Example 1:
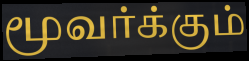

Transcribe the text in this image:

மூவர்க்கும்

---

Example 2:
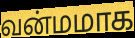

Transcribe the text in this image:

வன்மமாக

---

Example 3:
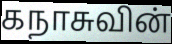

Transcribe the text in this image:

கநாசுவின்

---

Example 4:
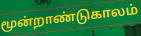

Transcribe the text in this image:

மூன்றாண்டுகாலம்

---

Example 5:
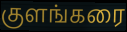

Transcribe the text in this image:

குளங்கரை